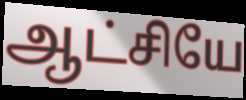
ஆட்சியே